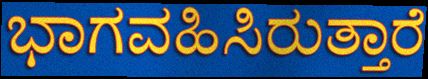
ಭಾಗವಹಿಸಿರುತ್ತಾರೆ